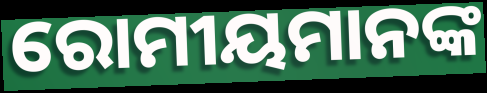
ରୋମୀୟମାନଙ୍କ